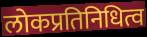
लोकप्रतिनिधित्व